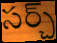
సర్చ్